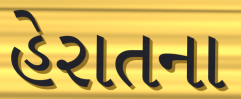
હેરાતના